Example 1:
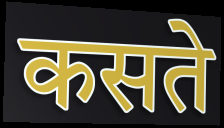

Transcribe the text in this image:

कसते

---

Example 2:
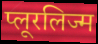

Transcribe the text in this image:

प्लूरलिज्म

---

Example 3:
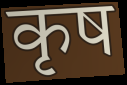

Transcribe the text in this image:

कृष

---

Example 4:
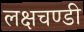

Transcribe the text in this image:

लक्षचण्डी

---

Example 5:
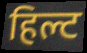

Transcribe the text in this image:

हिल्ट